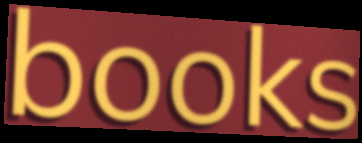
books